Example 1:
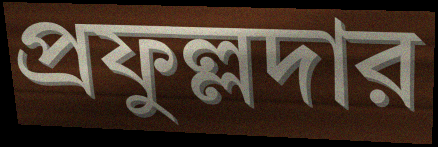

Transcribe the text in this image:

প্রফুল্লদার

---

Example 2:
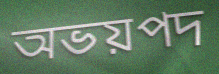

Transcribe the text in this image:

অভয়পদ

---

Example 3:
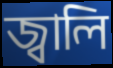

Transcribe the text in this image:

জ্বালি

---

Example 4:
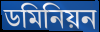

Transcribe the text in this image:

ডমিনিয়ন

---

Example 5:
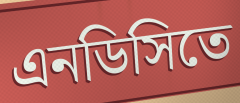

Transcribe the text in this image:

এনডিসিতে